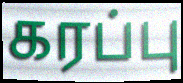
கரப்பு